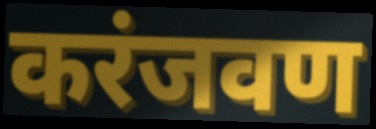
करंजवण